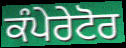
ਕੰਪੇਰੇਟੋਰ